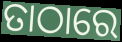
ତାଠାରେ